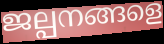
ജല്പനങ്ങളെ